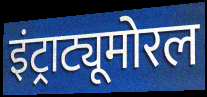
इंट्राट्यूमोरल